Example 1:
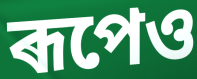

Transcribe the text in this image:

ৰূপেও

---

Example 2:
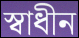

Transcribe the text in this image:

স্বাধীন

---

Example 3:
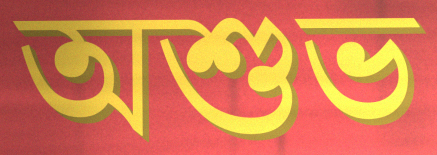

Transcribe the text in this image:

অশুভ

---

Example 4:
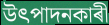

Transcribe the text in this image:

উৎপাদনকাৰী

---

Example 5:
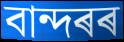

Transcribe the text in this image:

বান্দৰৰ